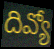
దివ్యో